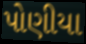
પોણીયા